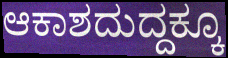
ಆಕಾಶದುದ್ದಕ್ಕೂ